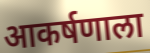
आकर्षणाला